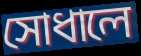
সোধালে